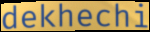
dekhechi